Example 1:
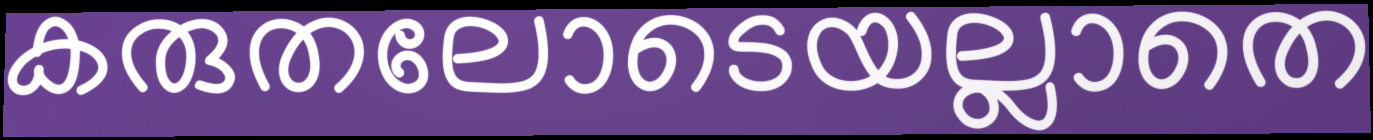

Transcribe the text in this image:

കരുതലോടെയല്ലാതെ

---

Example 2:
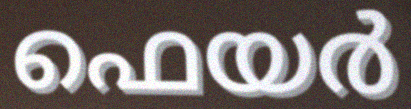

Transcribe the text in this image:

ഫെയർ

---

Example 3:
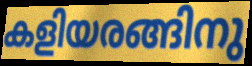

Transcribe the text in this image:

കളിയരങ്ങിനു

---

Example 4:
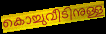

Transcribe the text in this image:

കൊച്ചുവീടിനുള്ള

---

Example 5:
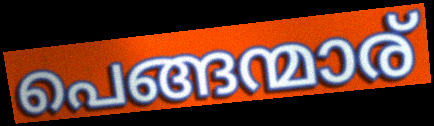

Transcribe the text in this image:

പെങ്ങന്മാര്